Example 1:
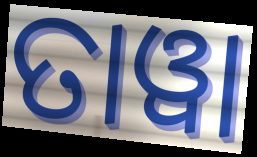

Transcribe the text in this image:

ତାୱା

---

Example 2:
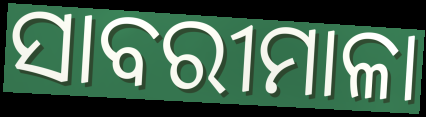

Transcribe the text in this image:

ସାବରୀମାଳା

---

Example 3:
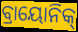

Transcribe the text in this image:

ବ୍ରାୟୋନିକ୍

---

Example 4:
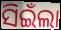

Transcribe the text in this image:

ସିଇଁଲା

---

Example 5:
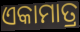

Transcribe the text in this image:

ଏକାମାତ୍ର